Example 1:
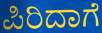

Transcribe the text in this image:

ಪಿರಿದಾಗೆ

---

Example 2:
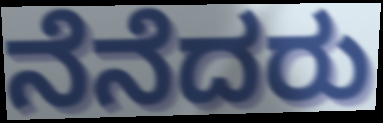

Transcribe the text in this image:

ನೆನೆದರು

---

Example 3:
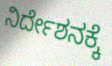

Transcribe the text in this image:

ನಿರ್ದೇಶನಕ್ಕೆ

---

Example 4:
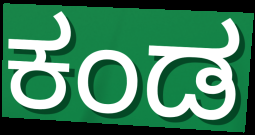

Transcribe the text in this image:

ಕಂಡ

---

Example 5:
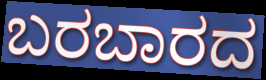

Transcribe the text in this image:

ಬರಬಾರದ